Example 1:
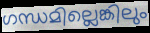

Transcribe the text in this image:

ഗന്ധമില്ലെങ്കിലും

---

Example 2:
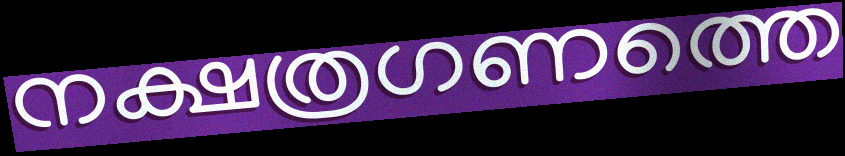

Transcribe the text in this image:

നക്ഷത്രഗണത്തെ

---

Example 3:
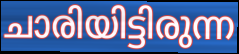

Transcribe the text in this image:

ചാരിയിട്ടിരുന്ന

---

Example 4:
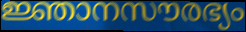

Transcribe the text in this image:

ജ്ഞാനസൗരഭ്യം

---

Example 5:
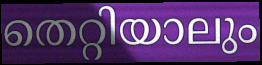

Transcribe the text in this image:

തെറ്റിയാലും